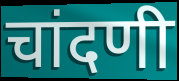
चांदणी